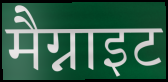
मैग्नाइट